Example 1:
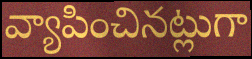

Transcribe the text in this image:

వ్యాపించినట్లుగా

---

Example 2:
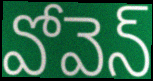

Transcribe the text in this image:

వోవెన్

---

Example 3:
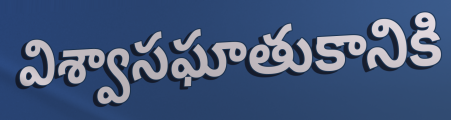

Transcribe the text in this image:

విశ్వాసఘాతుకానికి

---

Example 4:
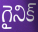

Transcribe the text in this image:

గైనిక్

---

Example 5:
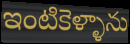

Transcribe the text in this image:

ఇంటికెళ్ళాను